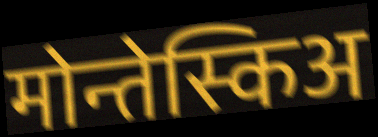
मोन्तेस्किअ